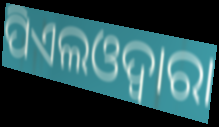
ପିଏଲଓଦ୍ୱାରା